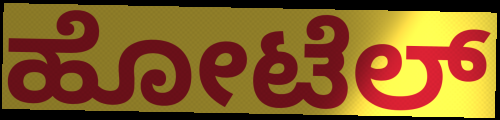
ಹೋಟೆಲ್